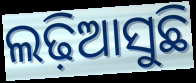
ଲଢ଼ିଆସୁଛି